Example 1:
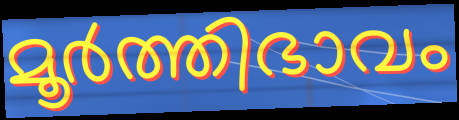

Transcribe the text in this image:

മൂർത്തിഭാവം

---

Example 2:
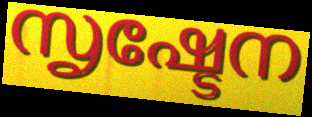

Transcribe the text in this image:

സൃഷ്ടേന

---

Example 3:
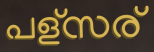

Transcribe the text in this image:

പള്സര്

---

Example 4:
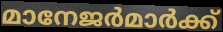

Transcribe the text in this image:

മാനേജർമാർക്ക്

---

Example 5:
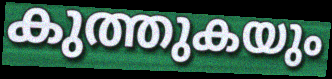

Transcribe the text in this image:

കുത്തുകയും